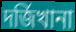
দর্জিখানা